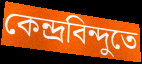
কেন্দ্রবিন্দুতে